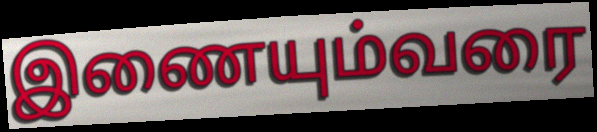
இணையும்வரை